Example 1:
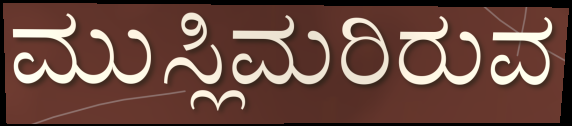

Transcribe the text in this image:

ಮುಸ್ಲಿಮರಿರುವ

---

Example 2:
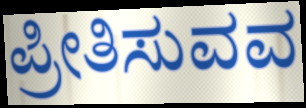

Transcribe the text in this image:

ಪ್ರೀತಿಸುವವ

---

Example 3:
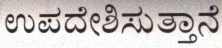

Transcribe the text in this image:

ಉಪದೇಶಿಸುತ್ತಾನೆ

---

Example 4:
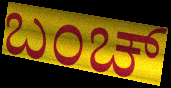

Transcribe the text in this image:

ಬಂಚ್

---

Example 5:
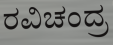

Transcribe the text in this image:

ರವಿಚಂದ್ರ